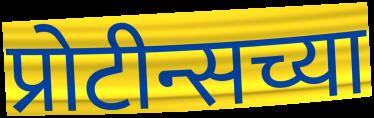
प्रोटीन्सच्या